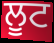
ਲੂਟ